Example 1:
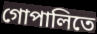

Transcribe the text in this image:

গোপালিতে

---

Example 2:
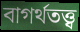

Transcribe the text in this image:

বাগর্থতত্ত্ব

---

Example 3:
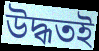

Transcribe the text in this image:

উদ্ধতই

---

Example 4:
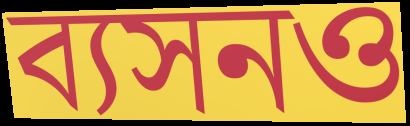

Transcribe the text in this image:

ব্যসনও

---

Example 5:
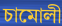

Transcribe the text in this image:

চামোলী